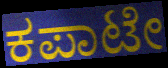
ಕಪಾಟೇ